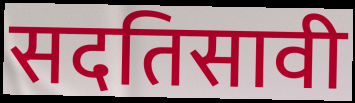
सदतिसावी